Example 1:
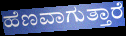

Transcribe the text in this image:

ಹೆಣವಾಗುತ್ತಾರೆ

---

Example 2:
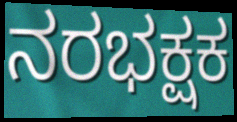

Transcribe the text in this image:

ನರಭಕ್ಷಕ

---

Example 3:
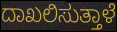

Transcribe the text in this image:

ದಾಖಲಿಸುತ್ತಾಳೆ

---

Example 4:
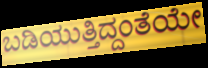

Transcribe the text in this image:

ಬಡಿಯುತ್ತಿದ್ದಂತೆಯೇ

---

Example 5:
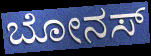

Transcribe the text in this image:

ಬೋನಸ್